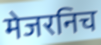
मेजरनिच